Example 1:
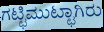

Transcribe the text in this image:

ಗಟ್ಟಿಮುಟ್ಟಾಗಿರು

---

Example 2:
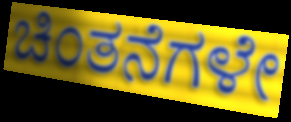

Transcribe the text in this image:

ಚಿಂತನೆಗಳೇ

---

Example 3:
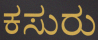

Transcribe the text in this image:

ಕಸುರು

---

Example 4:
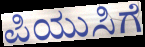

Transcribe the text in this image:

ಪಿಯುಸಿಗೆ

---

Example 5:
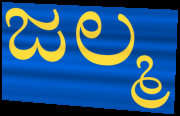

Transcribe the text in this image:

ಜಲ್ಮ